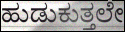
ಹುಡುಕುತ್ತಲೇ